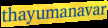
thayumanavar